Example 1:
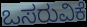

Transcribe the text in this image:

ಒಸರುವಿಕೆ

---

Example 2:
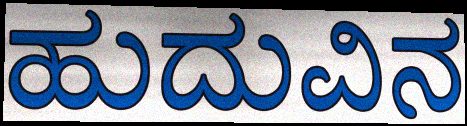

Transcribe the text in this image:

ಹುದುವಿನ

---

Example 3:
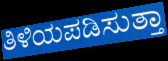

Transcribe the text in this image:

ತಿಳಿಯಪಡಿಸುತ್ತಾ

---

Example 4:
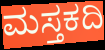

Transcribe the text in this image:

ಮಸ್ತಕದಿ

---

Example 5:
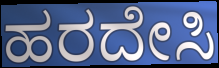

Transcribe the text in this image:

ಹರದೇಸಿ